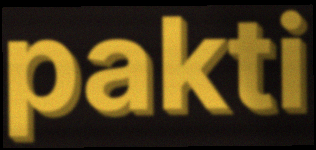
pakti